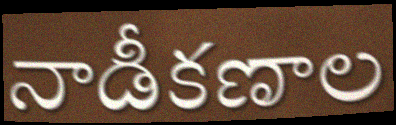
నాడీకణాల